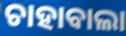
ଚାହାବାଲା